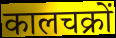
कालचक्रों